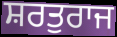
ਸ਼ਰਤੁਰਾਜ